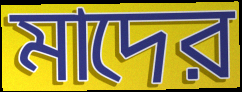
মাদের